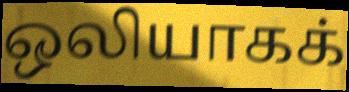
ஒலியாகக்